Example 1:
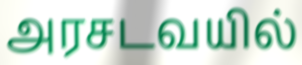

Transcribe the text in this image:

அரசடவயில்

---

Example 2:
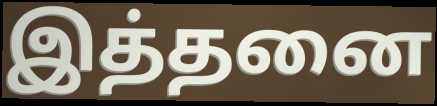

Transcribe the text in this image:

இத்தனை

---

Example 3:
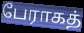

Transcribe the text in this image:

பேராகத்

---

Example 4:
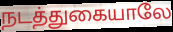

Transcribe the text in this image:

நடத்துகையாலே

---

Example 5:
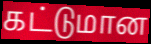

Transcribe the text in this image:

கட்டுமான